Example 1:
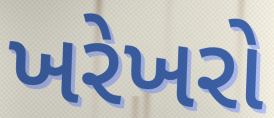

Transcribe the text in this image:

ખરેખરો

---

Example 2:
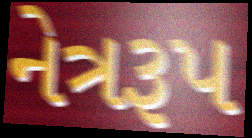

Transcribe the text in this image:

નેત્રરૂપ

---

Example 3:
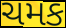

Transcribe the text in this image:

ચમક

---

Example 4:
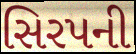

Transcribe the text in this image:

સિરપની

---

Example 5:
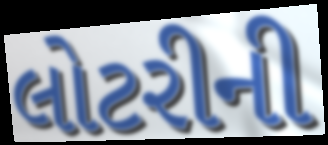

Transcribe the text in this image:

લોટરીની